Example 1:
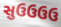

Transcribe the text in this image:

સુઉઉઉઉ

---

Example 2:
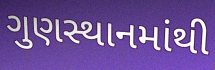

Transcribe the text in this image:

ગુણસ્થાનમાંથી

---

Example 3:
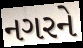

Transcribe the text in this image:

નગરને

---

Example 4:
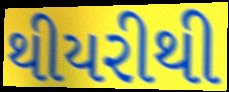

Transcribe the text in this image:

થીયરીથી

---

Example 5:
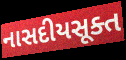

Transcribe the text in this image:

નાસદીયસૂક્ત